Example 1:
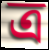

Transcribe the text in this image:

ত্র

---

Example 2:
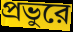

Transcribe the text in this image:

প্রভুরে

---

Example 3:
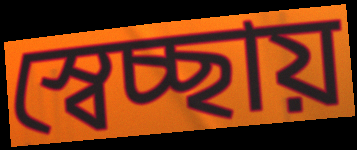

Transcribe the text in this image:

স্বেচ্ছায়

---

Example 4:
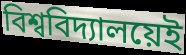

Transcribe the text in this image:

বিশ্ববিদ্যালয়েই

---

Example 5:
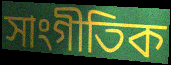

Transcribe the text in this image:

সাংগীতিক